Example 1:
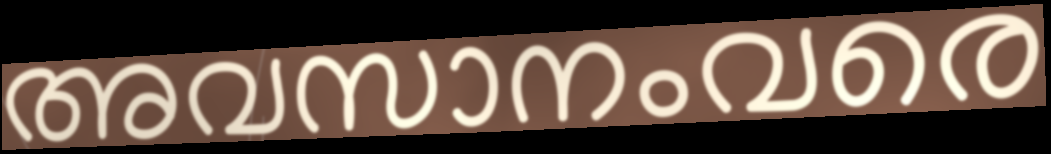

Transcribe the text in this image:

അവസാനംവരെ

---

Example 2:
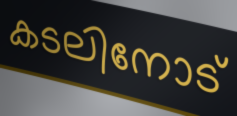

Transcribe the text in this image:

കടലിനോട്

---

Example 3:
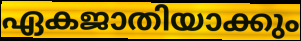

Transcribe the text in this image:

ഏകജാതിയാക്കും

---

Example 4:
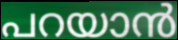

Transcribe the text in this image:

പറയാൻ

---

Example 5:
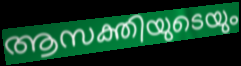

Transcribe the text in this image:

ആസക്തിയുടെയും